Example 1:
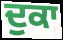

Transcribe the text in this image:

ਦੁਕਾ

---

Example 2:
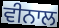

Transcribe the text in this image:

ਵੀਨਾਲ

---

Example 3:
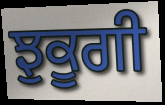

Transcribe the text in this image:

ਝੁਕੂਗੀ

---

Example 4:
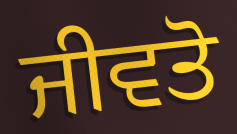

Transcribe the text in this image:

ਜੀਵਤੋ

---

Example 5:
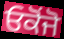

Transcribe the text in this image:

ਓਕੋਂਜੋ